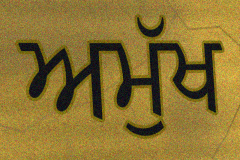
ਅਮੁੱਖ